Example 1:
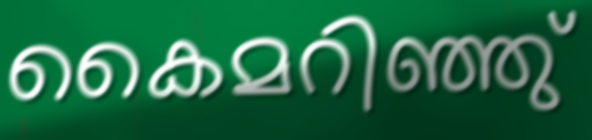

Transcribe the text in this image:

കൈമറിഞ്ഞു്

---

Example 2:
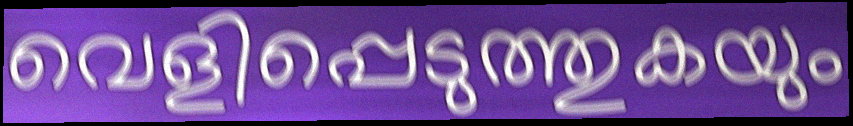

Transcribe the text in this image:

വെളിപ്പെടുത്തുകയും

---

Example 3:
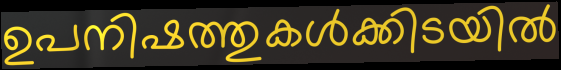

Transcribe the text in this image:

ഉപനിഷത്തുകൾക്കിടയിൽ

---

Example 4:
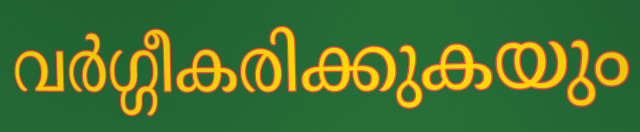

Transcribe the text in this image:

വർഗ്ഗീകരിക്കുകയും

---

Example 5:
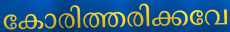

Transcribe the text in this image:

കോരിത്തരിക്കവേ